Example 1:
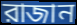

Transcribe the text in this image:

রাজান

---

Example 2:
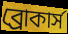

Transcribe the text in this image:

ব্রোকার্স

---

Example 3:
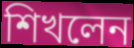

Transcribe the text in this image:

শিখলেন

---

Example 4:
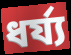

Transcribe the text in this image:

ধর্য্য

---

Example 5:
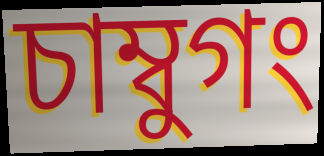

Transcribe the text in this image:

চাম্বুগং